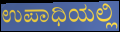
ಉಪಾಧಿಯಲ್ಲಿ